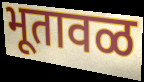
भूतावळ